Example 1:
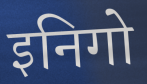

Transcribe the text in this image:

इनिगो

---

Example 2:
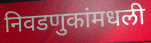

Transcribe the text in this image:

निवडणुकांमधली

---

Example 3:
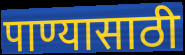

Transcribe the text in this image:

पाण्यासाठी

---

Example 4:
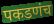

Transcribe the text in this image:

पकडणंच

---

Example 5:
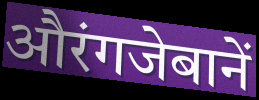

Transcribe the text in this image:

औरंगजेबानें